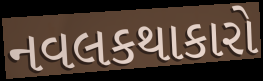
નવલકથાકારો